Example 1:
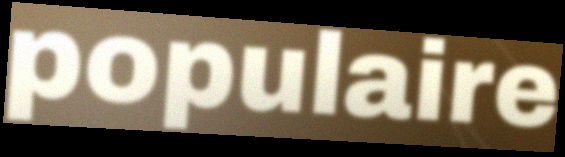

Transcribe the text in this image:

populaire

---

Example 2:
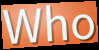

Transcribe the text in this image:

Who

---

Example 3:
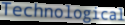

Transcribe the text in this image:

Technological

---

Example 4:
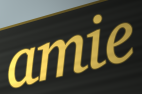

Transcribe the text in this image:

amie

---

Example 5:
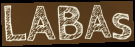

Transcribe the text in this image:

LABAs